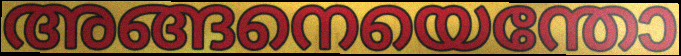
അങ്ങനെയെന്തോ